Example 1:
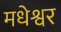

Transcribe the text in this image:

मधेश्वर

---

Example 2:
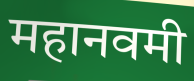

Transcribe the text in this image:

महानवमी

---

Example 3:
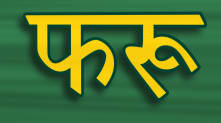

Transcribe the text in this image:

फरू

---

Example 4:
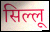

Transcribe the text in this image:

सिल्लू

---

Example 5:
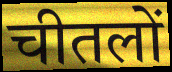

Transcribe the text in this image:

चीतलों